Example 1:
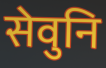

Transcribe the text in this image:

सेवुनि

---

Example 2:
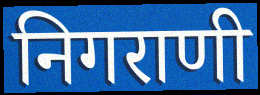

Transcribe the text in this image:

निगराणी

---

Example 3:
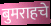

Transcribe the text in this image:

बुमराहचे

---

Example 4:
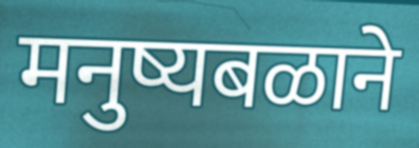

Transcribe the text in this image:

मनुष्यबळाने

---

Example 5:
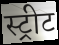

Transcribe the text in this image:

स्ट्रीट